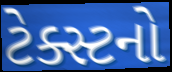
ટેક્સ્ટનો